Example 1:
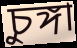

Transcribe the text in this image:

চুঙ্গা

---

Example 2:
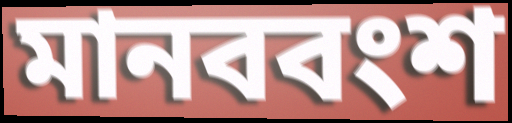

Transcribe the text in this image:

মানববংশ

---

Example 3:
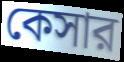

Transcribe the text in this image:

কেসার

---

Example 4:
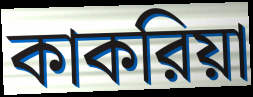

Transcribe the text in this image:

কাকরিয়া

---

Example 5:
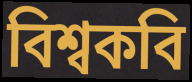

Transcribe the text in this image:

বিশ্বকবি